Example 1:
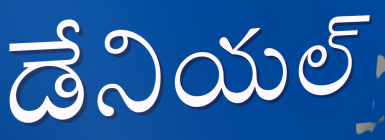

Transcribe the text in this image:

డేనియల్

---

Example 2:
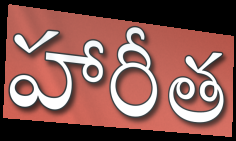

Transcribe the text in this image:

హారీత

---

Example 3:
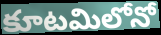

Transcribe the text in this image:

కూటమిలోనో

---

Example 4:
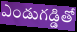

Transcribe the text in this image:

ఎండుగడ్డితో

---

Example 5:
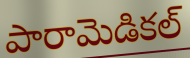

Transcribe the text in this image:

పారామెడికల్